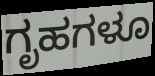
ಗೃಹಗಳೂ